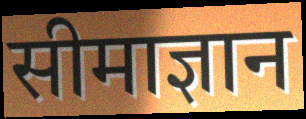
सीमाज्ञान